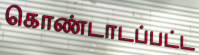
கொண்டாடப்பட்ட